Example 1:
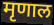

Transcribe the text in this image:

मृणाल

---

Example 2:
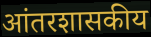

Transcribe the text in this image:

आंतरशासकीय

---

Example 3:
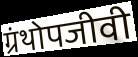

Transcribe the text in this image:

ग्रंथोपजीवी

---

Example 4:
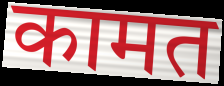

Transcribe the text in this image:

कामत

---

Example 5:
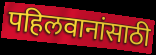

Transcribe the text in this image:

पहिलवानांसाठी